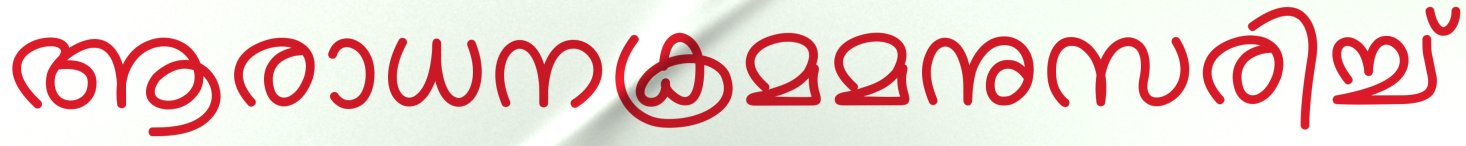
ആരാധനക്രമമനുസരിച്ച്